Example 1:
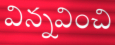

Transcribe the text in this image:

విన్నవించి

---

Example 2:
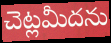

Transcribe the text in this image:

చెట్లమీదను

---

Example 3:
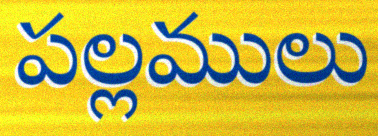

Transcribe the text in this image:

పల్లములు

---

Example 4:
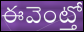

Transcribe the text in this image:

ఈవెంట్తో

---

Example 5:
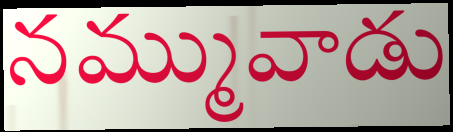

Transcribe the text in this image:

నమ్మువాడు